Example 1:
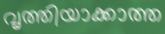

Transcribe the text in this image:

വൃത്തിയാക്കാത്ത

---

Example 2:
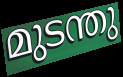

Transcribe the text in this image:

മുടന്തു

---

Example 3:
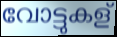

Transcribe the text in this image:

വോട്ടുകള്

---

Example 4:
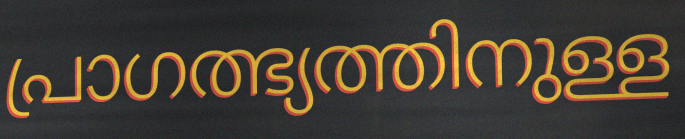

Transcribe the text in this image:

പ്രാഗത്ഭ്യത്തിനുള്ള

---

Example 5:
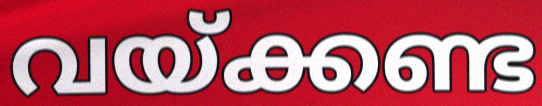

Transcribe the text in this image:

വയ്ക്കണ്ട